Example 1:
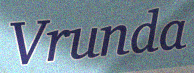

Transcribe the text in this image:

Vrunda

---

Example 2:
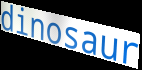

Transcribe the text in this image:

dinosaur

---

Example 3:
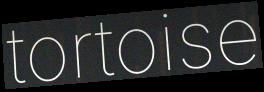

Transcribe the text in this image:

tortoise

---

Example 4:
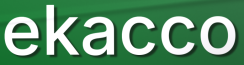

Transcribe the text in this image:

ekacco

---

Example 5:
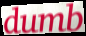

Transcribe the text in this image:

dumb